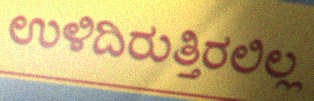
ಉಳಿದಿರುತ್ತಿರಲಿಲ್ಲ